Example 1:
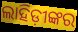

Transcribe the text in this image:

ଲାହିଡ଼ୀଙ୍କର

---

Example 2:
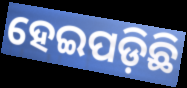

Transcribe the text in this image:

ହେଇପଡ଼ିଛି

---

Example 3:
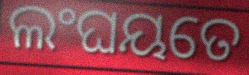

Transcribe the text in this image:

ଲଂଘୟତେ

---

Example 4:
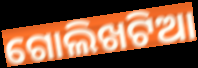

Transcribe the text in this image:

ଗୋଲିଖଟିଆ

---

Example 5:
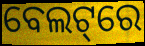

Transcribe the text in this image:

ବେଲଟ୍‌ରେ